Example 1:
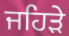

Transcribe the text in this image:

ਜਹਿੜੇ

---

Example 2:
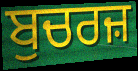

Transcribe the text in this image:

ਬੁਚਰਜ਼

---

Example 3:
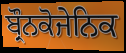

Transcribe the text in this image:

ਬ੍ਰੌਨਕੋਜੇਨਿਕ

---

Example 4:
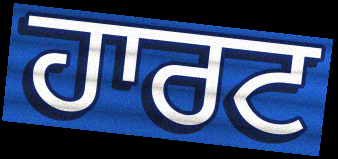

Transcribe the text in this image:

ਹਾਰਟ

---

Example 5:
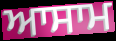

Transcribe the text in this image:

ਆਸਾਮ